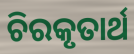
ଚିରକୃତାର୍ଥ